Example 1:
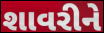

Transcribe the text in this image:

શાવરીને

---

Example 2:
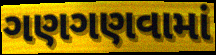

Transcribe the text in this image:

ગણગણવામાં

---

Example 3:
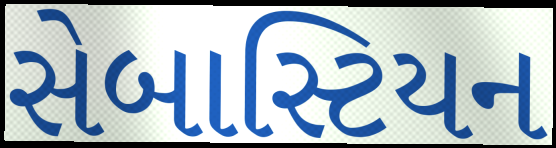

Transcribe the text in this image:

સેબાસ્ટિયન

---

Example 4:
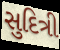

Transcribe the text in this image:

સુદિત્રી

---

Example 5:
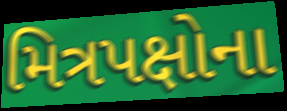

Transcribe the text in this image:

મિત્રપક્ષોના